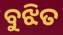
ବୁଝିତ